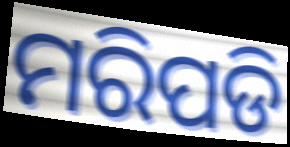
ମରିପଡି